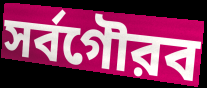
সর্বগৌরব